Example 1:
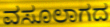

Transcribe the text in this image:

ವಸೂಲಾಗದ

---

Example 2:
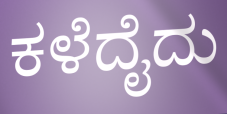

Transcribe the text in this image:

ಕಳೆದೈದು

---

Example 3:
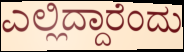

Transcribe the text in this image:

ಎಲ್ಲಿದ್ದಾರೆಂದು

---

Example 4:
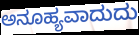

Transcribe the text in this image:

ಅನೂಹ್ಯವಾದುದು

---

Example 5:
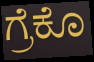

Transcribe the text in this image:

ಗ್ರೆಕೊ